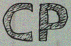
CP